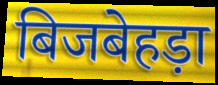
बिजबेहड़ा